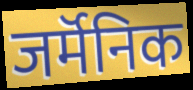
जर्मॅनिक